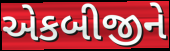
એકબીજીને